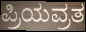
ಪ್ರಿಯವ್ರತ